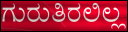
ಗುರುತಿರಲಿಲ್ಲ